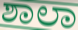
ಶಾಲಾ